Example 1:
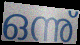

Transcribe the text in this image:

ഒന്നു്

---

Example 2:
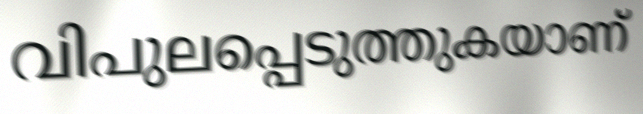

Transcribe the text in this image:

വിപുലപ്പെടുത്തുകയാണ്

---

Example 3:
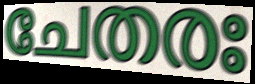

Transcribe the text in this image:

ചേതരഃ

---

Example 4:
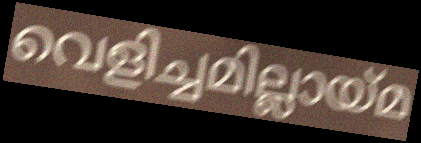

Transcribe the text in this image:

വെളിച്ചമില്ലായ്മ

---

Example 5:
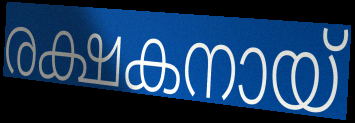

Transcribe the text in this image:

രക്ഷകനായ്